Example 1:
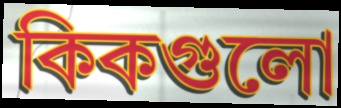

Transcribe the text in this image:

কিকগুলো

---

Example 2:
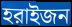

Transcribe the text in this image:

হরাইজন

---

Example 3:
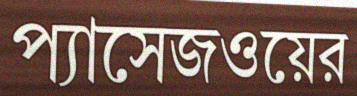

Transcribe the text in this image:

প্যাসেজওয়ের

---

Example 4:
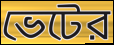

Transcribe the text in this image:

ভেটের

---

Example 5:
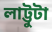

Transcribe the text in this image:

লাট্টুটা